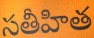
సతీహిత